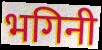
भगिनी